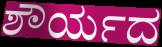
ಶೌರ್ಯದ